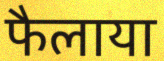
फैलाया